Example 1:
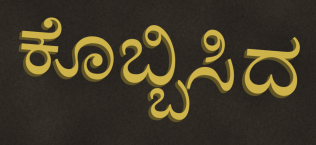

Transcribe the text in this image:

ಕೊಬ್ಬಿಸಿದ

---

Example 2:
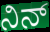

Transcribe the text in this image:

ನಿನ್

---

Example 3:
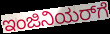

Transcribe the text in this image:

ಇಂಜಿನಿಯರ್‌ಗೆ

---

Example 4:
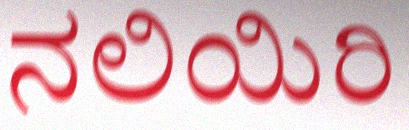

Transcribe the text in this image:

ನಲಿಯಿರಿ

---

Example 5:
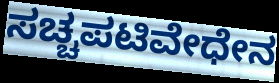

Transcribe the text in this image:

ಸಚ್ಚಪಟಿವೇಧೇನ